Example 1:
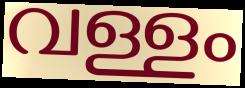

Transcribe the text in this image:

വള്ളം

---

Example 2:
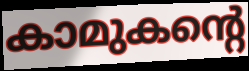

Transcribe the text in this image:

കാമുകന്റെ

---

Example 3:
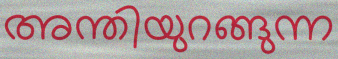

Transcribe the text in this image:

അന്തിയുറങ്ങുന്ന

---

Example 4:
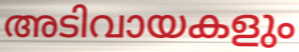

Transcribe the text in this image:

അടിവായകളും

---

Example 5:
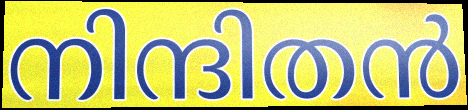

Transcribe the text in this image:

നിന്ദിതൻ